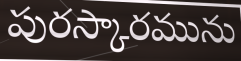
పురస్కారమును